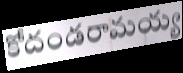
కోదండరామయ్య